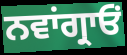
ਨਵਾਂਗ੍ਰਾਓਂ